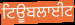
ਟਿਊਬਲਾਈਟ